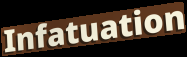
Infatuation